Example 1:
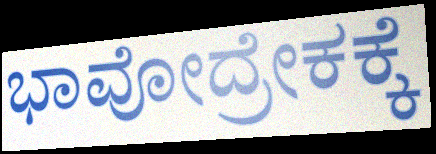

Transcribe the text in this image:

ಭಾವೋದ್ರೇಕಕ್ಕೆ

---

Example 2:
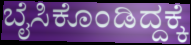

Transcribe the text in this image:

ಬೈಸಿಕೊಂಡಿದ್ದಕ್ಕೆ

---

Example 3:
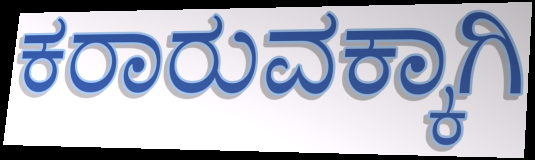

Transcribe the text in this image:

ಕರಾರುವಕ್ಕಾಗಿ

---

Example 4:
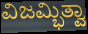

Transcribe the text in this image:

ವಿಜಮ್ಭಿತ್ವಾ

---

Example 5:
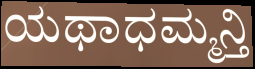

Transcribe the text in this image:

ಯಥಾಧಮ್ಮನ್ತಿ